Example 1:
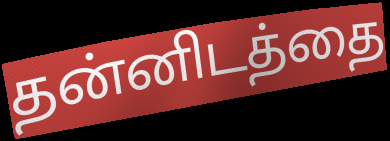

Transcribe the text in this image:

தன்னிடத்தை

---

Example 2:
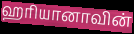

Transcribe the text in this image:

ஹரியானாவின்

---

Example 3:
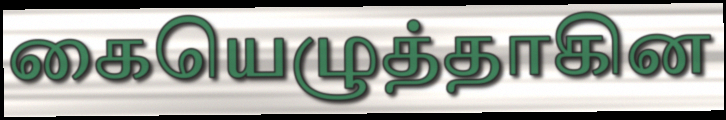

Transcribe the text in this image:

கையெழுத்தாகின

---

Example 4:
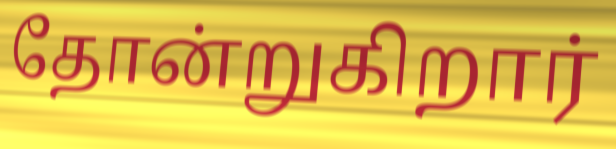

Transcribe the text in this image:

தோன்றுகிறார்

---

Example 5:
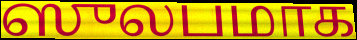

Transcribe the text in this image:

ஸுலபமாக